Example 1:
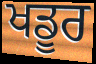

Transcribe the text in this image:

ਖਡੂਰ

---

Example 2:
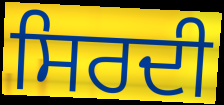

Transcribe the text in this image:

ਸਿਰਦੀ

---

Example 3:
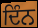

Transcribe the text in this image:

ਦਿੰਨ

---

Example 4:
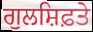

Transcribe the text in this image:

ਗੁਲਸ਼ਿਫ਼ਤੇ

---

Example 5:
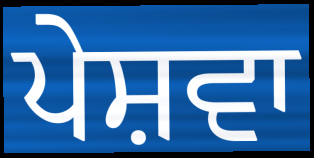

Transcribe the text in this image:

ਪੇਸ਼ਵਾ